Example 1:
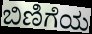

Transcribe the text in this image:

ಬಿಣಿಗೆಯ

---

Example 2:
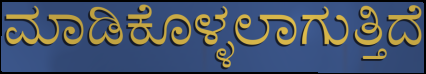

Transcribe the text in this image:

ಮಾಡಿಕೊಳ್ಳಲಾಗುತ್ತಿದೆ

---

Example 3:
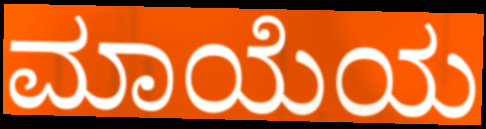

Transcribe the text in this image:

ಮಾಯೆಯ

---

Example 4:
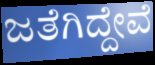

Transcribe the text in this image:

ಜತೆಗಿದ್ದೇವೆ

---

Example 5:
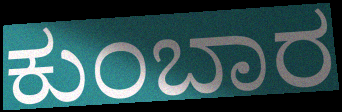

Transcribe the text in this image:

ಕುಂಬಾರ